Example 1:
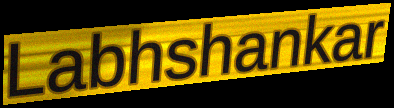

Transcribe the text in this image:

Labhshankar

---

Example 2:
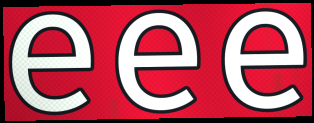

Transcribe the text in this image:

eee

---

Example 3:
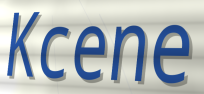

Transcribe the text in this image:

Kcene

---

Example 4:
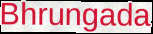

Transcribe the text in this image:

Bhrungada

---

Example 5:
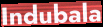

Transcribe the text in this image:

Indubala